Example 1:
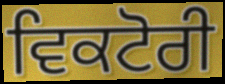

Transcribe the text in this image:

ਵਿਕਟੋਰੀ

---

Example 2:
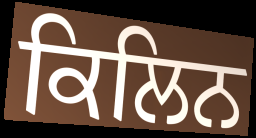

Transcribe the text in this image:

ਕਿਲਿਨ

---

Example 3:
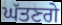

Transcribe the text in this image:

ਘੱਤਣਗੇ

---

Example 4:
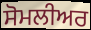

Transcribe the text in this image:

ਸੋਮਲੀਅਰ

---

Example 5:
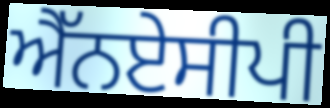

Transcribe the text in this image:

ਐੱਨਏਸੀਪੀ